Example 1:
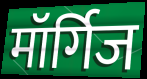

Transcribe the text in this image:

मॉर्गिज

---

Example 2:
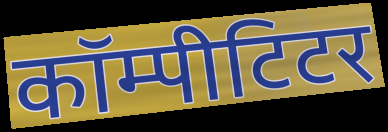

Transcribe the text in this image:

कॉम्पीटिटर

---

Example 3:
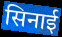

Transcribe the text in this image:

सिनाई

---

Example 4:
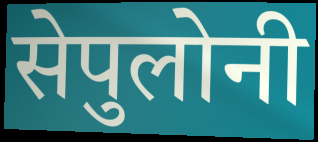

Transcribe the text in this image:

सेपुलोनी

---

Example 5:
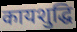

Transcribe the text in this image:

कायशुद्धि